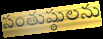
సంతుష్ఠులను